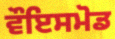
ਵੌਇਸਮੋਡ